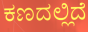
ಕಣದಲ್ಲಿದೆ